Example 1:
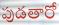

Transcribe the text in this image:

పుడతారో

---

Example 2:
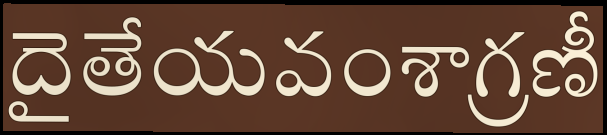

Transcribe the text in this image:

దైతేయవంశాగ్రణీ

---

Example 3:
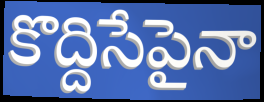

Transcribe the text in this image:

కొద్దిసేపైనా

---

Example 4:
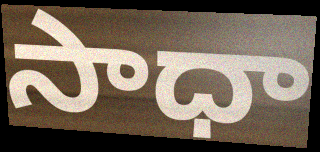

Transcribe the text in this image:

సాధా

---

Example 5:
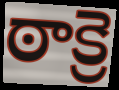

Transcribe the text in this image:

ఠాక్రె